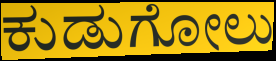
ಕುಡುಗೋಲು